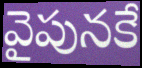
వైపునకే